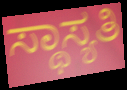
ಸ್ಥಾಸ್ಯತಿ